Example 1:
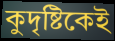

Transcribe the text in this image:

কুদৃষ্টিকেই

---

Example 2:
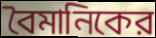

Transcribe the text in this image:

বৈমানিকের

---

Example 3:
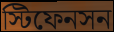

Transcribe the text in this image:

স্টিফেনসন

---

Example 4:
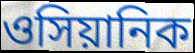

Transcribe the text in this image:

ওসিয়ানিক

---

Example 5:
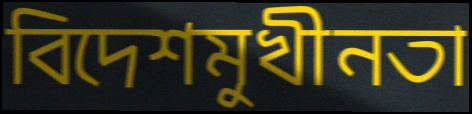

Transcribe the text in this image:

বিদেশমুখীনতা